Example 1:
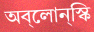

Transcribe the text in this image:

অব্‌লোন্‌স্কি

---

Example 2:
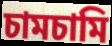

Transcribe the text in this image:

চামচামি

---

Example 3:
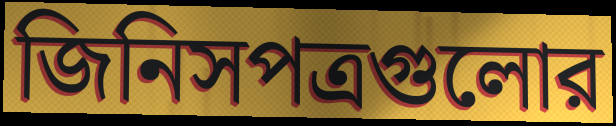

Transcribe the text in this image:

জিনিসপত্রগুলোর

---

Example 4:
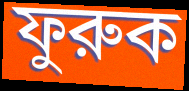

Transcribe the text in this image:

ফুরুক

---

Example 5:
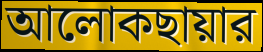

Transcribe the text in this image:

আলোকছায়ার